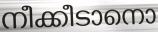
നീക്കീടാനൊ